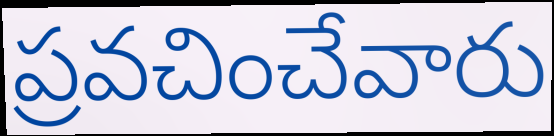
ప్రవచించేవారు